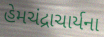
હેમચંદ્રાચાર્યના